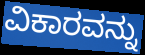
ವಿಕಾರವನ್ನು